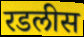
रडलीस